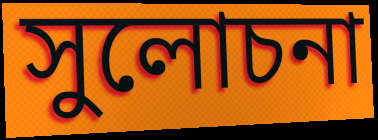
সুলোচনা